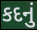
કદનું